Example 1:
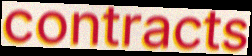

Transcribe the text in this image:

contracts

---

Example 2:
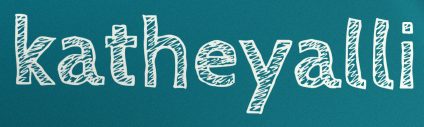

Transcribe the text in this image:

katheyalli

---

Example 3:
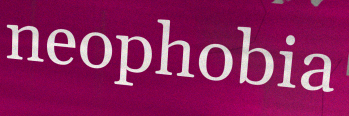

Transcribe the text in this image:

neophobia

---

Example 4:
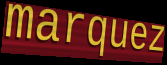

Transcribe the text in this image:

marquez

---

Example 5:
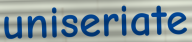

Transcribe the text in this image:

uniseriate